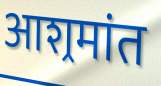
आश्रमांत